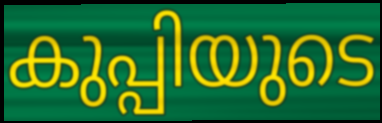
കുപ്പിയുടെ